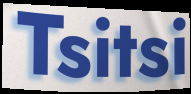
Tsitsi